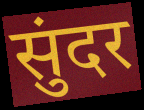
सुंदर